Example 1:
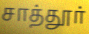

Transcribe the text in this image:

சாத்தூர்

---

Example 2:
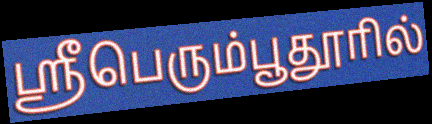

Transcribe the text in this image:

ஸ்ரீபெரும்பூதூரில்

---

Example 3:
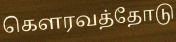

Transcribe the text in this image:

கௌரவத்தோடு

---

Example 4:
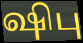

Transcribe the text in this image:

ஷிபு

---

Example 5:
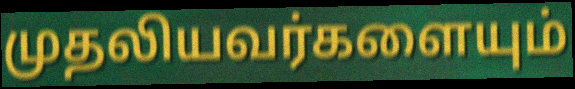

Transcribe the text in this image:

முதலியவர்களையும்